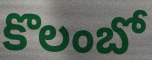
కొలంబో